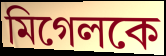
মিগেলকে